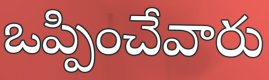
ఒప్పించేవారు